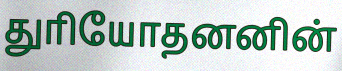
துரியோதனனின்